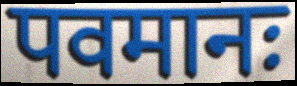
पवमानः